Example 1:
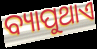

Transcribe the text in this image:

ବ୍ୟାପୁଥାଏ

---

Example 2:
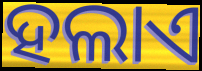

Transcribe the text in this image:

ହଲାଏ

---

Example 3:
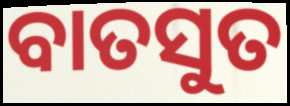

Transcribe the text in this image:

ବାତସୁତ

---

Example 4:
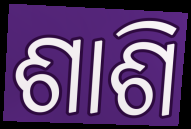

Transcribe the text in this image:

ଶାଶି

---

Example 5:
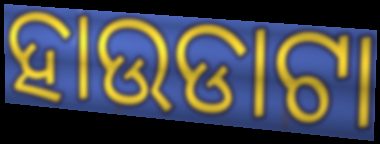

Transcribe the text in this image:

ହାଉଡାଟା